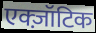
एक्ज़ॉटिक